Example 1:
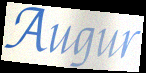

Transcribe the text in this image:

Augur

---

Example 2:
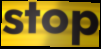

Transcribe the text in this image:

stop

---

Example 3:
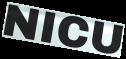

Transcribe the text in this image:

NICU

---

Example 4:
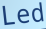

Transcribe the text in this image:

Led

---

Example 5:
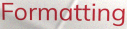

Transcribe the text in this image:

Formatting